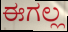
ಈಗಲ್ಲ